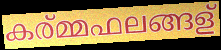
കര്മ്മഫലങ്ങള്